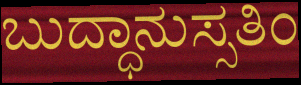
ಬುದ್ಧಾನುಸ್ಸತಿಂ